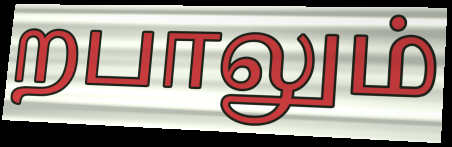
றபாலும்